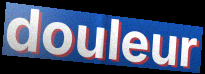
douleur